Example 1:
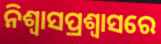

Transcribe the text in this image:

ନିଶ୍ୱାସପ୍ରଶ୍ୱାସରେ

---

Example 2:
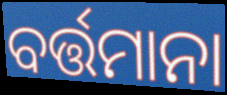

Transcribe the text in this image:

ବର୍ତ୍ତମାନା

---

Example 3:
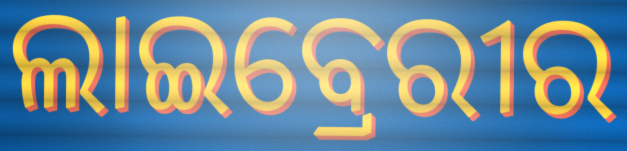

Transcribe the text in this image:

ଲାଇବ୍ରେରୀର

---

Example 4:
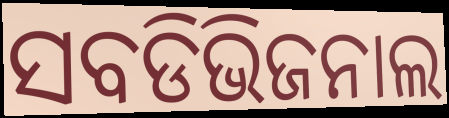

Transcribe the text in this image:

ସବଡିଭିଜନାଲ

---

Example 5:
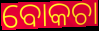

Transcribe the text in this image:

ବୋକଚା